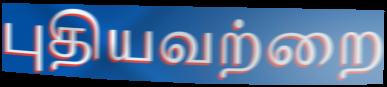
புதியவற்றை